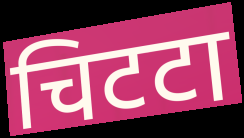
चिटटा